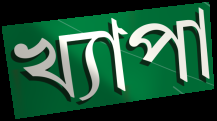
খ্যাপা